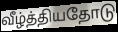
வீழ்த்தியதோடு